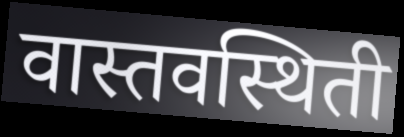
वास्तवस्थिती